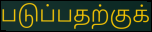
படுப்பதற்குக்